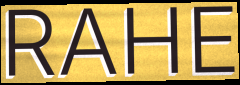
RAHE